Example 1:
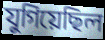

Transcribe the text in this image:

যুগিয়েছিল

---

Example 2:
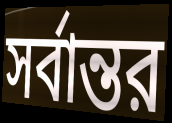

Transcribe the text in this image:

সর্বান্তর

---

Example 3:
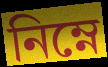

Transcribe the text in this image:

নিম্নে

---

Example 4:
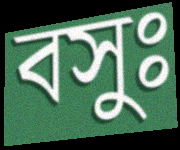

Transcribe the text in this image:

বসুঃ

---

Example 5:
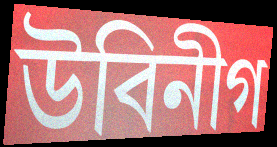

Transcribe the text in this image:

উবিনীগ